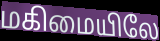
மகிமையிலே